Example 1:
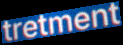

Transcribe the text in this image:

tretment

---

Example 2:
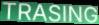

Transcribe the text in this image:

TRASING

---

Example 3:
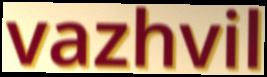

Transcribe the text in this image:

vazhvil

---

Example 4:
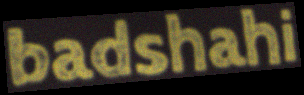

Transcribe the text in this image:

badshahi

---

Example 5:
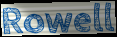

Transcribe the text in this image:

Rowell